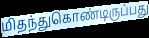
மிதந்துகொண்டிருப்பது